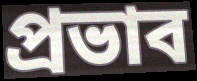
প্রভাব